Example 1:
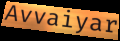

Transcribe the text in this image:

Avvaiyar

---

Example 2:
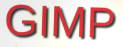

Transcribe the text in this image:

GIMP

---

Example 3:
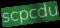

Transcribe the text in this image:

scpcdu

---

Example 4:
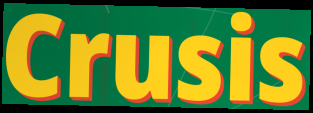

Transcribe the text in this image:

Crusis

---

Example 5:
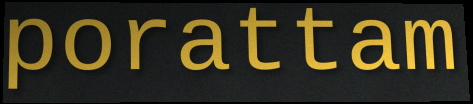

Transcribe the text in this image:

porattam